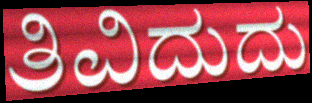
ತಿವಿದುದು